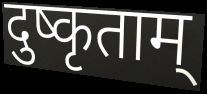
दुष्कृताम्